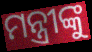
ମନ୍ତ୍ରୀଙ୍କୁ